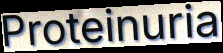
Proteinuria